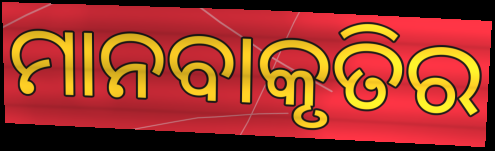
ମାନବାକୃତିର